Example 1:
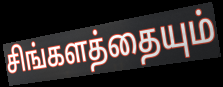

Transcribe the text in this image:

சிங்களத்தையும்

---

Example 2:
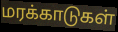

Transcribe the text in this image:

மரக்காடுகள்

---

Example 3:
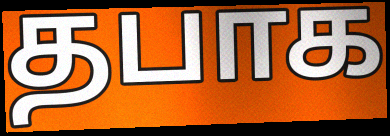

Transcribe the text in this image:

தபாக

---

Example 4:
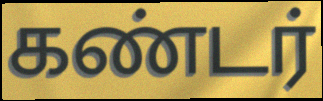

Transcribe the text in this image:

கண்டர்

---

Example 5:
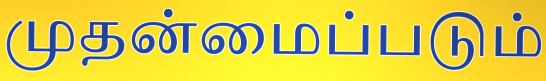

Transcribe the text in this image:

முதன்மைப்படும்